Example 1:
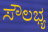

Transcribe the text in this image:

ಸೌಲಭ್ಯ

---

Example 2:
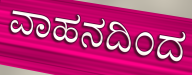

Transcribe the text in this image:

ವಾಹನದಿಂದ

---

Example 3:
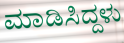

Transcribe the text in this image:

ಮಾಡಿಸಿದ್ದಳು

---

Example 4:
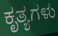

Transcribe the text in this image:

ಕೃತ್ಯಗಳು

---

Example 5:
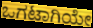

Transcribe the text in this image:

ಒಗಟಾಗಿಯೇ